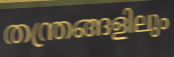
തന്ത്രങ്ങളിലും